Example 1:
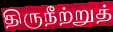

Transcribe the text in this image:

திருநீற்றுத்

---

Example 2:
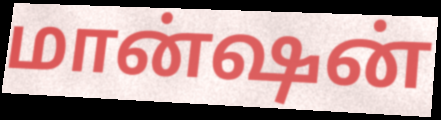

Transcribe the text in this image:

மான்ஷன்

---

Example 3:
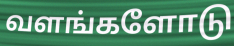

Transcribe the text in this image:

வளங்களோடு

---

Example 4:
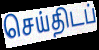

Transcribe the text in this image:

செய்திடப்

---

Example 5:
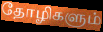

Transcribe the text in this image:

தோழிகளும்